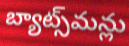
బ్యాట్స్‌మన్లు